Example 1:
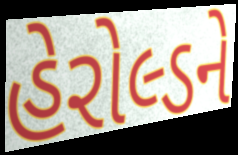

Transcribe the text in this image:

હેરોલ્ડને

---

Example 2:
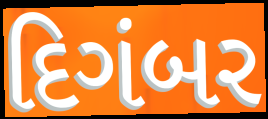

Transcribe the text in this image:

દિગંબર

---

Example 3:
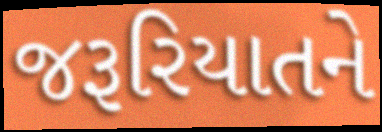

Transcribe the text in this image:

જરૂરિયાતને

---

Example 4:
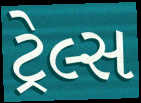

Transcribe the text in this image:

ટ્રેલ્સ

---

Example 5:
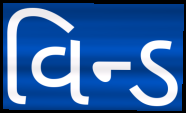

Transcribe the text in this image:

વિન્ડ